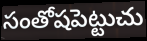
సంతోషపెట్టుచు